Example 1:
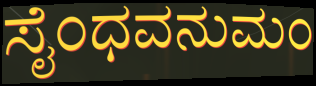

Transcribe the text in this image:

ಸೈಂಧವನುಮಂ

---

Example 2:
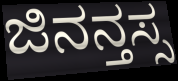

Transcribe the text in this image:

ಜಿನನ್ತಸ್ಸ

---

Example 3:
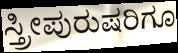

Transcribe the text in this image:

ಸ್ತ್ರೀಪುರುಷರಿಗೂ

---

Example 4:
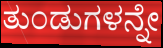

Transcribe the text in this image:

ತುಂಡುಗಳನ್ನೇ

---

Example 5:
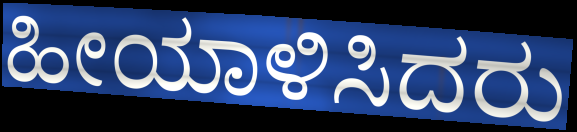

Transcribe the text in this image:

ಹೀಯಾಳಿಸಿದರು